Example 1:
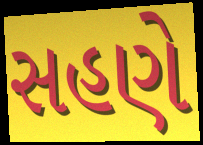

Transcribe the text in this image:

સહણે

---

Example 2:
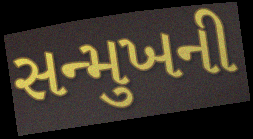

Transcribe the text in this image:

સન્મુખની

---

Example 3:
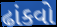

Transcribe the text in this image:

ઢાંકવો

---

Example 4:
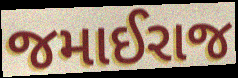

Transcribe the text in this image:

જમાઈરાજ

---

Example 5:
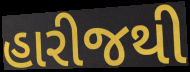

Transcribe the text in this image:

હારીજથી